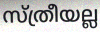
സ്ത്രീയല്ല